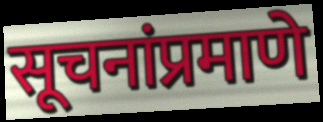
सूचनांप्रमाणे